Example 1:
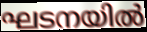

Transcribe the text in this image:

ഘടനയിൽ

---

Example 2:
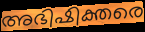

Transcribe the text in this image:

അഭിഷിക്തരെ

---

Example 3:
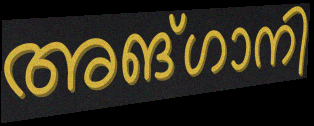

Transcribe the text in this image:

അങ്ഗാനി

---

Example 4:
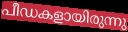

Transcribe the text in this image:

പീഡകളായിരുന്നു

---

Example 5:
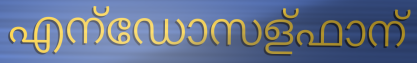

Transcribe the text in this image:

എന്ഡോസള്ഫാന്